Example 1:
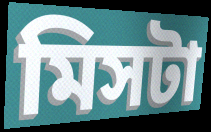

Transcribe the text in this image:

মিসটা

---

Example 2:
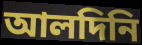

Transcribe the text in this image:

আলদিনি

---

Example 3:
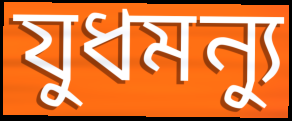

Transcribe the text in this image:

যুধমন্যু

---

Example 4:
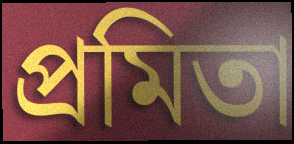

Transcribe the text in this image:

প্রমিতা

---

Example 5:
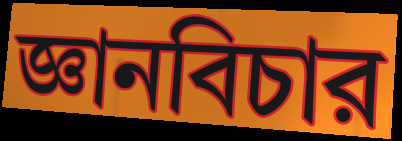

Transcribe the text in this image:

জ্ঞানবিচার